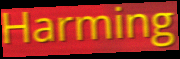
Harming